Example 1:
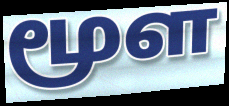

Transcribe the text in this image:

மூள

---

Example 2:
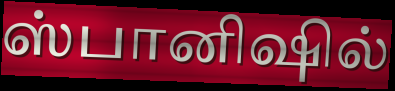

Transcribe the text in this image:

ஸ்பானிஷில்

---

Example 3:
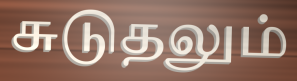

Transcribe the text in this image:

சுடுதலும்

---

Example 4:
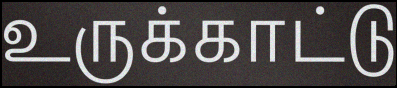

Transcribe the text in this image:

உருக்காட்டு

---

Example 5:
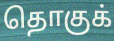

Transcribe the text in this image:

தொகுக்